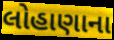
લોહાણાના